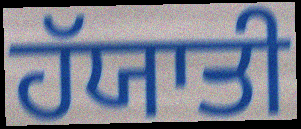
ਹੱਯਾਤੀ